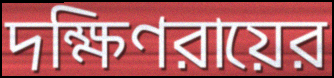
দক্ষিণরায়ের